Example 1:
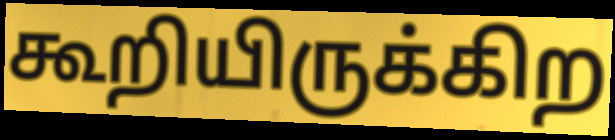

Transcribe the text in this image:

கூறியிருக்கிற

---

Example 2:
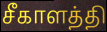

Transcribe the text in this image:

சீகாளத்தி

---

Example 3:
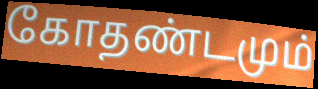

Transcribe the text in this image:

கோதண்டமும்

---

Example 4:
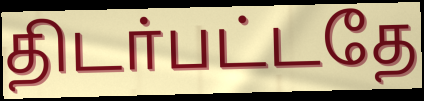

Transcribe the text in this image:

திடர்பட்டதே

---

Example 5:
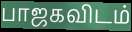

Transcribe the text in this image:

பாஜகவிடம்